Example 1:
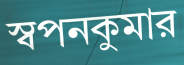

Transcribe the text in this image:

স্বপনকুমার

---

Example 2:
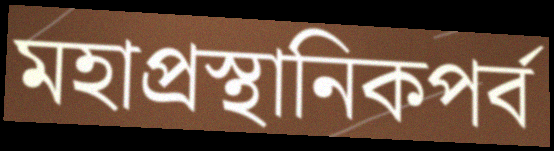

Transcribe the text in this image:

মহাপ্রস্থানিকপর্ব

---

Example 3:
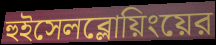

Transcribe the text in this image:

হুইসেলব্লোয়িংয়ের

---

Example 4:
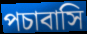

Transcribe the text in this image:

পচাবাসি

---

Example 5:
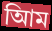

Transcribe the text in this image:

আিম